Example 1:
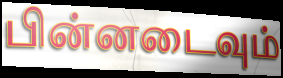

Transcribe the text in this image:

பின்னடைவும்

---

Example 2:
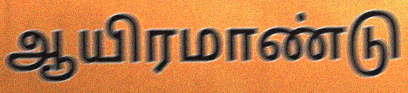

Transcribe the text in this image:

ஆயிரமாண்டு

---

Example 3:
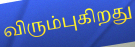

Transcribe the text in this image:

விரும்புகிறது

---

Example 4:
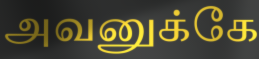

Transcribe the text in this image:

அவனுக்கே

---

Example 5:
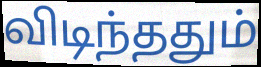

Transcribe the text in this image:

விடிந்ததும்